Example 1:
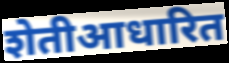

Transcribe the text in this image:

शेतीआधारित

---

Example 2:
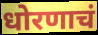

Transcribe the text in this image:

धोरणाचं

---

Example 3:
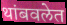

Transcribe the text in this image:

थांबवलेत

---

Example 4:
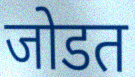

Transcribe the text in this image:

जोडत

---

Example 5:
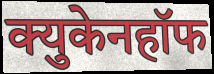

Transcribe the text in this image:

क्युकेनहॉफ